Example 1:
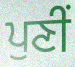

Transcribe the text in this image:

ਪੁਣੀਂ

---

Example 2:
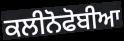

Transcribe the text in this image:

ਕਲੀਨੋਫੋਬੀਆ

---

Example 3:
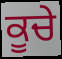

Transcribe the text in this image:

ਕੂਚੇ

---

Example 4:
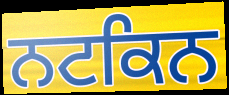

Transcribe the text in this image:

ਨਟਕਿਨ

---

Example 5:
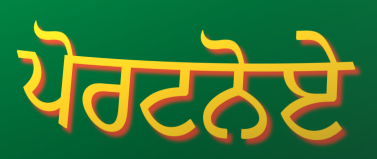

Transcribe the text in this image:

ਪੋਰਟਨੋਏ